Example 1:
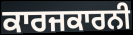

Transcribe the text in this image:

ਕਾਰਜਕਾਰਨੀ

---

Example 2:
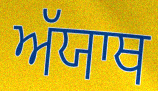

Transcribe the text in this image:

ਅੱਯਾਥ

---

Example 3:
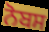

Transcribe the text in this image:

ਨੋਬਸ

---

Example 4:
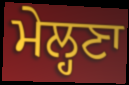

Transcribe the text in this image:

ਮੇਲ੍ਹਣਾ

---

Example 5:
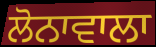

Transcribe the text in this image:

ਲੋਨਾਵਾਲਾ